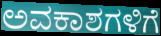
ಅವಕಾಶಗಳಿಗೆ